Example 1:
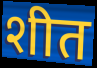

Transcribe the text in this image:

शीत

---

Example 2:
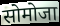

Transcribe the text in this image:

सोमोजा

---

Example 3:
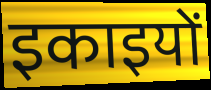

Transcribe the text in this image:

इकाइयों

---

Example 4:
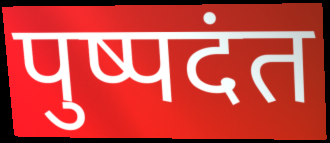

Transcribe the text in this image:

पुष्पदंत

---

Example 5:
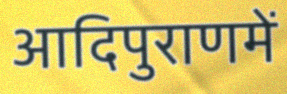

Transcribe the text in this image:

आदिपुराणमें